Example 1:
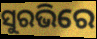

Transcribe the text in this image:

ସୁରଭିରେ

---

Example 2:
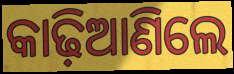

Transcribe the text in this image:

କାଢ଼ିଆଣିଲେ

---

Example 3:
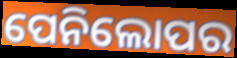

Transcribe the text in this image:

ପେନିଲୋପର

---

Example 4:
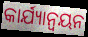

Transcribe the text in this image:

କାର୍ଯ୍ୟାନ୍ୱୟନ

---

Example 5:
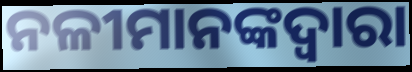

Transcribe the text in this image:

ନଳୀମାନଙ୍କଦ୍ୱାରା